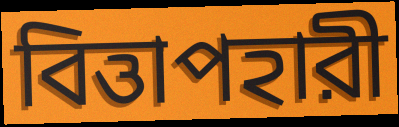
বিত্তাপহারী